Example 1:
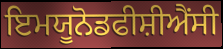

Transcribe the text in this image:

ਇਮਯੂਨੋਡਫੀਸ਼ੀਐਂਸੀ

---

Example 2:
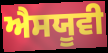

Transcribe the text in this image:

ਐਸਯੂਵੀ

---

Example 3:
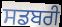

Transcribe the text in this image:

ਸਡਬਰੀ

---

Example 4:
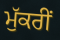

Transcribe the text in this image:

ਮੁੱਕਰੀਂ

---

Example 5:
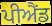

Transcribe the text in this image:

ਪੀਐਂਡ